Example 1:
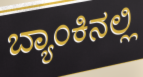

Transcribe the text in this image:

ಬ್ಯಾಂಕಿನಲ್ಲಿ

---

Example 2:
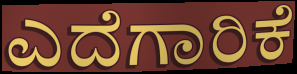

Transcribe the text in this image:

ಎದೆಗಾರಿಕೆ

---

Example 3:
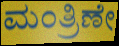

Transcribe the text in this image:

ಮಂತ್ರಿಣೇ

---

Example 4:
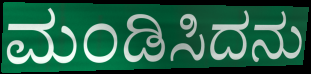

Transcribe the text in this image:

ಮಂಡಿಸಿದನು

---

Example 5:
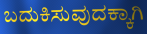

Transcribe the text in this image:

ಬದುಕಿಸುವುದಕ್ಕಾಗಿ